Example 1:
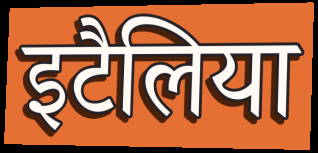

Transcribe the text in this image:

इटैलिया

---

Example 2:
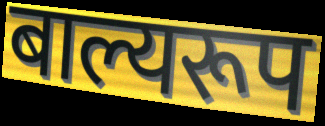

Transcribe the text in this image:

बाल्यरूप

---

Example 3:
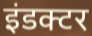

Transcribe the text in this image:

इंडक्टर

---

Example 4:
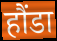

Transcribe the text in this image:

हौंडा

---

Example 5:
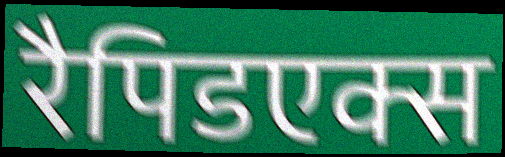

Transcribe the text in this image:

रैपिडएक्स